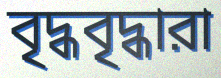
বৃদ্ধবৃদ্ধারা